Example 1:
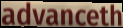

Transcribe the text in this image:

advanceth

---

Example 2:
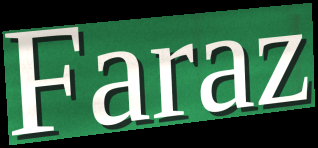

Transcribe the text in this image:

Faraz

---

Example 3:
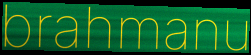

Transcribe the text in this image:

brahmanu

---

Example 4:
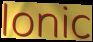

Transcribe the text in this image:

Ionic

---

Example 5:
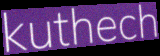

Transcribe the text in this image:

kuthech